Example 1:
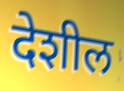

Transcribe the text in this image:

देशील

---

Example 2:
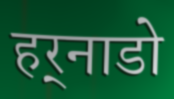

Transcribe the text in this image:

हर्नाडो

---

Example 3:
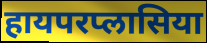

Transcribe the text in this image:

हायपरप्लासिया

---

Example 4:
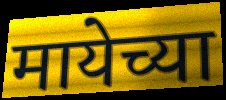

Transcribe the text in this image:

मायेच्या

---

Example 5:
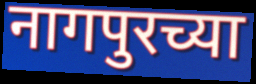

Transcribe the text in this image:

नागपुरच्या